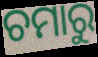
ଚମାରୁ